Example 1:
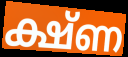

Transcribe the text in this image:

ക്ഷ്ണ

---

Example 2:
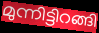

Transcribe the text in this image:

മുന്നിട്ടിറങ്ങി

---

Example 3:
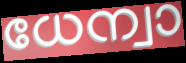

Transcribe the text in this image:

ധേന്വാ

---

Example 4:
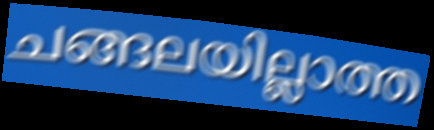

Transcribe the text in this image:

ചങ്ങലയില്ലാത്ത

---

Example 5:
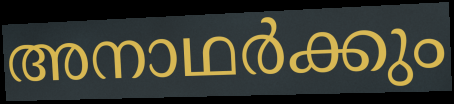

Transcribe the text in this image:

അനാഥർക്കും